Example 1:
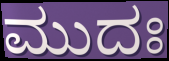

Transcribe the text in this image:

ಮುದಃ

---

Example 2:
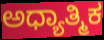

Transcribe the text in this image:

ಅಧ್ಯಾತ್ಮಿಕ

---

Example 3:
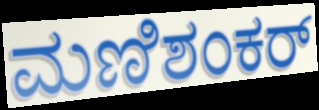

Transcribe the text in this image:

ಮಣಿಶಂಕರ್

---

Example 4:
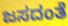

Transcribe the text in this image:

ಜಸದಂತೆ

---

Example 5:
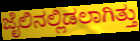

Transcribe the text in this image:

ಜೈಲಿನಲ್ಲಿಡಲಾಗಿತ್ತು